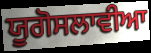
ਯੂਗੋਸਲਾਵੀਆ